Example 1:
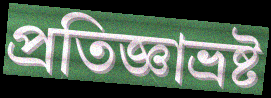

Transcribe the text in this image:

প্রতিজ্ঞাভ্রষ্ট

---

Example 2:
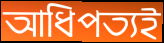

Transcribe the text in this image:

আধিপত্যই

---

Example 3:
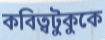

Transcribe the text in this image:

কবিত্বটুকুকে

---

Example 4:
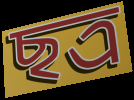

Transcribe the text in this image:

ছত্র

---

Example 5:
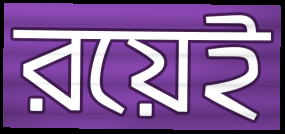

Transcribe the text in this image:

রয়েই